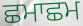
ਛਮਾਛਮ